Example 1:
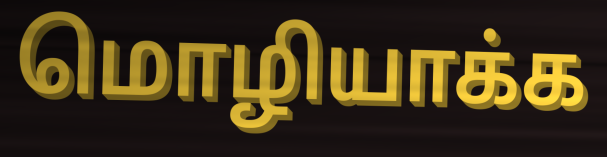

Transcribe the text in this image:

மொழியாக்க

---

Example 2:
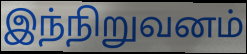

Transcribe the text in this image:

இந்நிறுவனம்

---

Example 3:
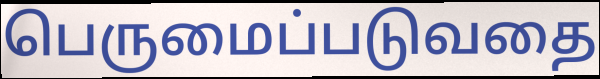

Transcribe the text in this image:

பெருமைப்படுவதை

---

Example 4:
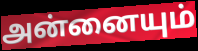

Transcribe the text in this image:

அன்னையும்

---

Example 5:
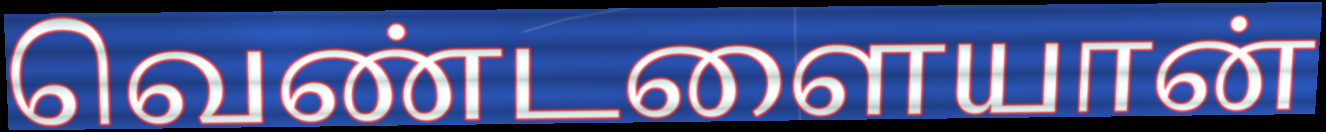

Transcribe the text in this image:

வெண்டளையான்